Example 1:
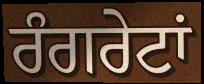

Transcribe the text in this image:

ਰੰਗਰੇਟਾਂ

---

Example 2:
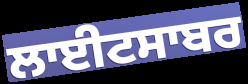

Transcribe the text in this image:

ਲਾਈਟਸਾਬਰ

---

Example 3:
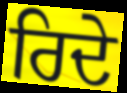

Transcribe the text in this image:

ਰਿਦੇ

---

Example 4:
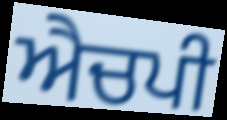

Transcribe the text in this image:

ਐਚਪੀ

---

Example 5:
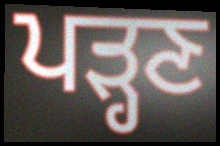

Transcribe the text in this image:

ਪੜ੍ਹਣ